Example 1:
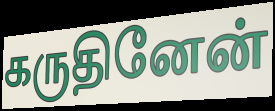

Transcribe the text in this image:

கருதினேன்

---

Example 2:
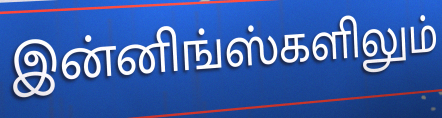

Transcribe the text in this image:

இன்னிங்ஸ்களிலும்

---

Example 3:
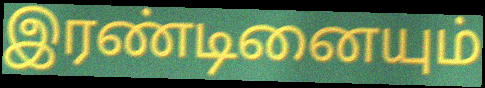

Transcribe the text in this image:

இரண்டினையும்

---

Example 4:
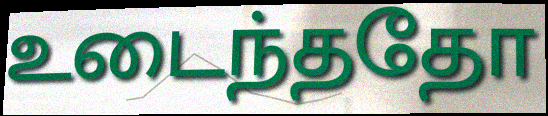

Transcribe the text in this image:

உடைந்ததோ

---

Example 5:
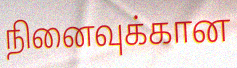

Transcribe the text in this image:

நினைவுக்கான